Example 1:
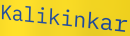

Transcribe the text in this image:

Kalikinkar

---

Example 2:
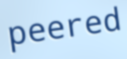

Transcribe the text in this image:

peered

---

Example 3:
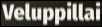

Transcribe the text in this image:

Veluppillai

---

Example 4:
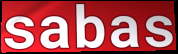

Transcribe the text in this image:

sabas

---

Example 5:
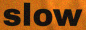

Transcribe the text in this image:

slow